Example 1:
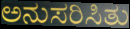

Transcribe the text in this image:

ಅನುಸರಿಸಿತು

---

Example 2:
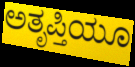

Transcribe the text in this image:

ಅತೃಪ್ತಿಯೂ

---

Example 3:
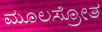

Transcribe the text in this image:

ಮೂಲಸ್ರೋತ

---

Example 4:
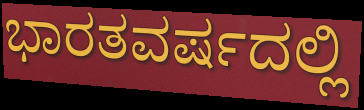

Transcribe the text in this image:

ಭಾರತವರ್ಷದಲ್ಲಿ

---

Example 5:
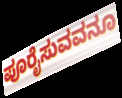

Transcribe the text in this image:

ಪೂರೈಸುವವನೂ